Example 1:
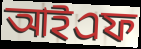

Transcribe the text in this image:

আইএফ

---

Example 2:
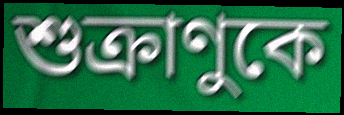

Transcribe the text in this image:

শুক্রাণুকে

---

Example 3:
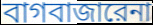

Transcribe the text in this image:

বাগবাজারেনা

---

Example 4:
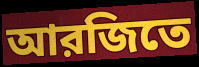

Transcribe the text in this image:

আরজিতে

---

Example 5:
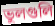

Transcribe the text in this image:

ভুলগুলি